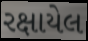
રક્ષાયેલ